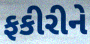
ફકીરીને